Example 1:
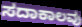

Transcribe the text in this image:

ಸದಾಕಾಲವು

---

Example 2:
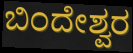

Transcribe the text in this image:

ಬಿಂದೇಶ್ವರ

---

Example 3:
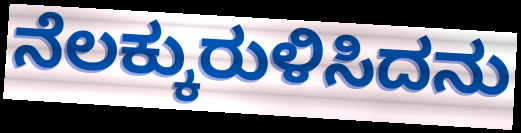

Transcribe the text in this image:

ನೆಲಕ್ಕುರುಳಿಸಿದನು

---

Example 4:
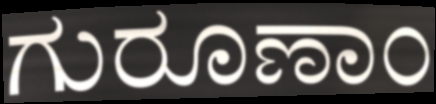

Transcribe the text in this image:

ಗುರೂಣಾಂ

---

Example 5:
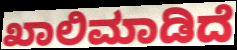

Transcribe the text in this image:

ಖಾಲಿಮಾಡಿದೆ